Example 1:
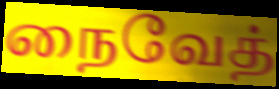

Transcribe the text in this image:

நைவேத்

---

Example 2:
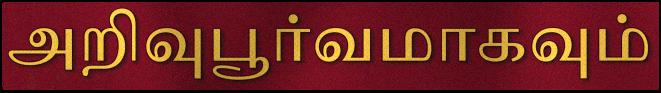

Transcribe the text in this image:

அறிவுபூர்வமாகவும்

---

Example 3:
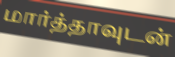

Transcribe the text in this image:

மார்த்தாவுடன்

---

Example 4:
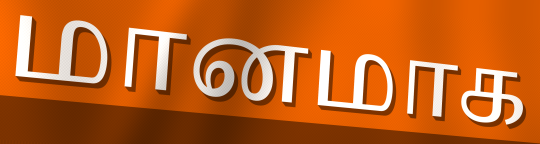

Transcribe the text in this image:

மானமாக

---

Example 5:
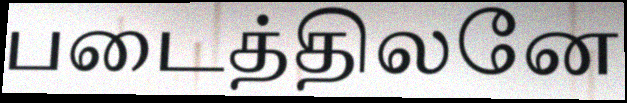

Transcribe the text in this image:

படைத்திலனே